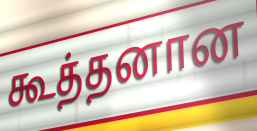
கூத்தனான